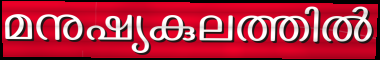
മനുഷ്യകുലത്തിൽ